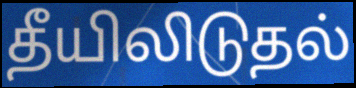
தீயிலிடுதல்